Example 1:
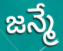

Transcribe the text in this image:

జన్మే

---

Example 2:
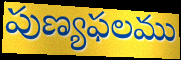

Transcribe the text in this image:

పుణ్యఫలము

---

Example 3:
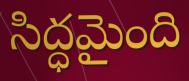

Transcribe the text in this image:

సిద్ధమైంది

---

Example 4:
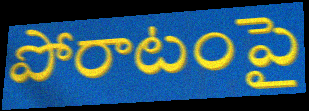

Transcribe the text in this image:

పోరాటంపై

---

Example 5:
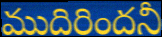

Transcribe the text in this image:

ముదిరిందనీ